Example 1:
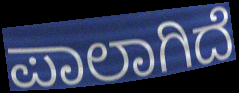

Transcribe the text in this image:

ಪಾಲಾಗಿದೆ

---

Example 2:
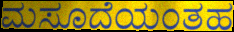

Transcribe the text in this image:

ಮಸೂದೆಯಂತಹ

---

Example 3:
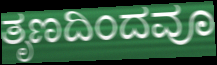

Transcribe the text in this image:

ತೃಣದಿಂದವೂ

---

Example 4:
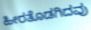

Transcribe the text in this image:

ಹೀರತೊಡಗಿದವು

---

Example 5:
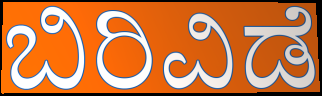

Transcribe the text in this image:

ಬಿರಿವಿಡೆ